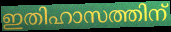
ഇതിഹാസത്തിന്